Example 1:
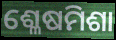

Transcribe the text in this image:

ଶ୍ଳେଷମିଶା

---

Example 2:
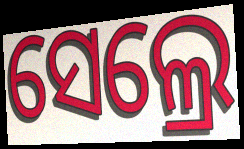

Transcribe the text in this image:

ସେଲ୍ରେ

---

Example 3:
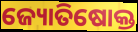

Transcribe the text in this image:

ଜ୍ୟୋତିଷୋକ୍ତ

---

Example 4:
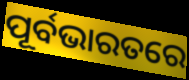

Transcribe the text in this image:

ପୂର୍ବଭାରତରେ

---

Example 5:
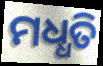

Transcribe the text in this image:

ମଧ୍ଧତି